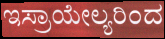
ಇಸ್ರಾಯೇಲ್ಯರಿಂದ